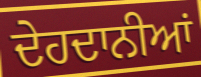
ਦੇਹਦਾਨੀਆਂ